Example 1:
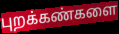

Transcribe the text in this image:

புறக்கண்களை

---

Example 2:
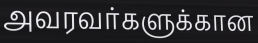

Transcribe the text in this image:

அவரவர்களுக்கான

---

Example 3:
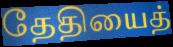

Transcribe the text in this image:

தேதியைத்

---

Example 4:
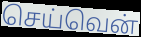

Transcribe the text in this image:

செய்வென்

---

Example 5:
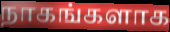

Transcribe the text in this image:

நாகங்களாக